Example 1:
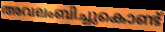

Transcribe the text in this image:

അവലംബിച്ചുകൊണ്ട്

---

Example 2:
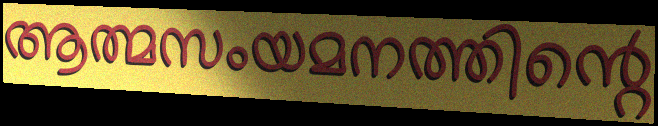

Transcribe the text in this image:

ആത്മസംയമനത്തിന്റെ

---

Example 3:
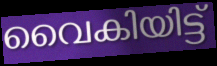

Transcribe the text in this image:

വൈകിയിട്ട്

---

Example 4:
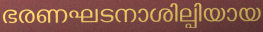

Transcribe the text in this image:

ഭരണഘടനാശില്പിയായ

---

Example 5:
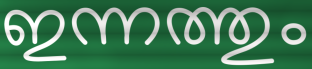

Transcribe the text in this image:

ഇന്നത്തും